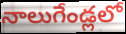
నాలుగేండ్లలో